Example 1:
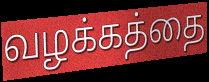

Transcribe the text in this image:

வழக்கத்தை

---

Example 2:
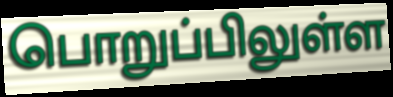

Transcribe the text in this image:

பொறுப்பிலுள்ள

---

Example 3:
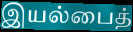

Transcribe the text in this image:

இயல்பைத்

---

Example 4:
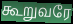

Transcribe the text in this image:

கூறுவரே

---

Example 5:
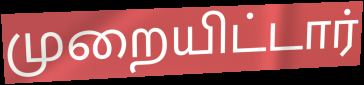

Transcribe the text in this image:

முறையிட்டார்